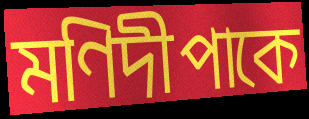
মণিদীপাকে